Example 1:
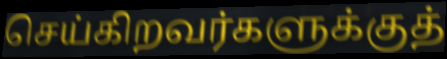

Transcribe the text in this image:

செய்கிறவர்களுக்குத்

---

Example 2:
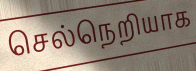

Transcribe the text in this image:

செல்நெறியாக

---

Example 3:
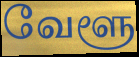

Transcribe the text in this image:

வேளூ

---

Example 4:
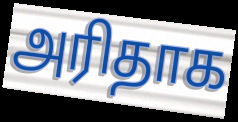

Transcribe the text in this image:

அரிதாக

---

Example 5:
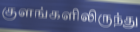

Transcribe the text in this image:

குளங்களிலிருந்து